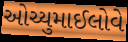
ઓચ્યુમાઈલોવે